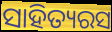
ସାହିତ୍ୟରସ